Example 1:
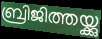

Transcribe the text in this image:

ബ്രിജിത്തയ്ക്കു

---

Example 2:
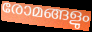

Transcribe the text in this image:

രോമങ്ങളും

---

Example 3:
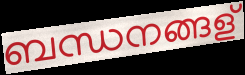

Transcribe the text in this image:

ബന്ധനങ്ങള്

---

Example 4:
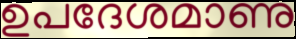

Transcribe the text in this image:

ഉപദേശമാണു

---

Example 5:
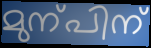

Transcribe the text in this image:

മുന്പിന്